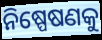
ନିଷ୍ପେଷଣକୁ